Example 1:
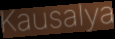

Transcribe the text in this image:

Kausalya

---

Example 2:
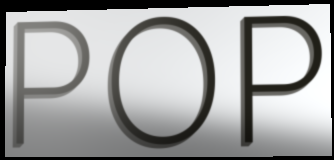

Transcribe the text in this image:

POP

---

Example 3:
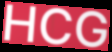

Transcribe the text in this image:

HCG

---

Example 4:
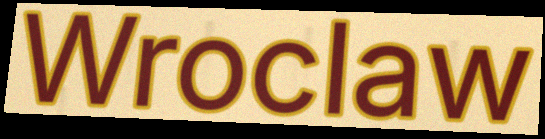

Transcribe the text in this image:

Wroclaw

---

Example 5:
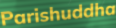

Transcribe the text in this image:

Parishuddha